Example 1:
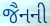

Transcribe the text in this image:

જૈનની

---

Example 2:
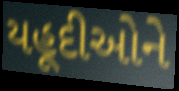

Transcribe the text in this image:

યહૂદીઓને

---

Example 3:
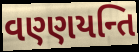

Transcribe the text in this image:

વણ્ણયન્તિ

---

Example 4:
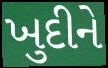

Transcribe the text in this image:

ખુદીને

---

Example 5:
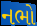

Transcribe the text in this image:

નભો